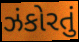
ઝંકોરતું